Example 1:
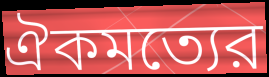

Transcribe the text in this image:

ঐকমত্যের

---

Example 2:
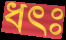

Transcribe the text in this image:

ধৎঃ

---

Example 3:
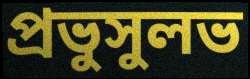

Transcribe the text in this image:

প্রভুসুলভ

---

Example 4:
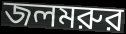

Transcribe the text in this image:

জলমরুর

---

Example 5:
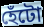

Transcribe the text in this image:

হেঁটো